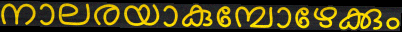
നാലരയാകുമ്പോഴേക്കും